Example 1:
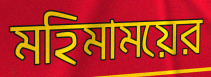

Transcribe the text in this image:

মহিমাময়ের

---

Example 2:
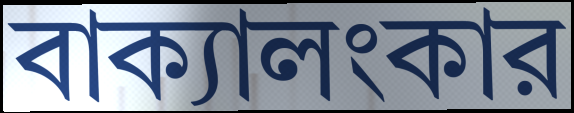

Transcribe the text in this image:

বাক্যালংকার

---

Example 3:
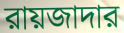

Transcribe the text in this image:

রায়জাদার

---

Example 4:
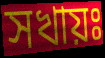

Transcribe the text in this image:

সখায়ঃ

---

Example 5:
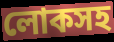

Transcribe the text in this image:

লোকসহ